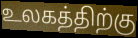
உலகத்திற்கு